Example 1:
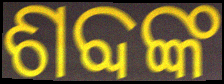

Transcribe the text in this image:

ଶବ୍ଦଙ୍କ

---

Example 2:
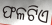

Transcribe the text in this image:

ଫଳଟିଏ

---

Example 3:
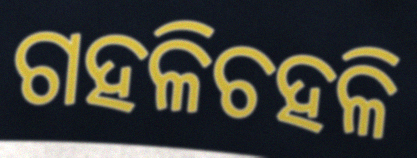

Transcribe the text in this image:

ଗହଳିଚହଳି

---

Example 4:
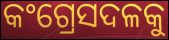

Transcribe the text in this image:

କଂଗ୍ରେସଦଳକୁ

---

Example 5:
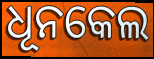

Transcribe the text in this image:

ଧୂନକେଲ